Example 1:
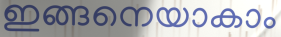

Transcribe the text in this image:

ഇങ്ങനെയാകാം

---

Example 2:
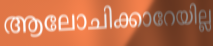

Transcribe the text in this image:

ആലോചിക്കാറേയില്ല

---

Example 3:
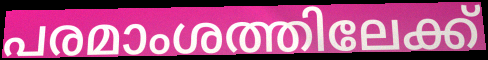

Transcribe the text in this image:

പരമാംശത്തിലേക്ക്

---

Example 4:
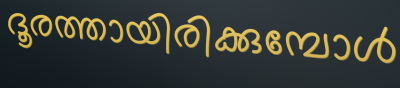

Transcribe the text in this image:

ദൂരത്തായിരിക്കുമ്പോൾ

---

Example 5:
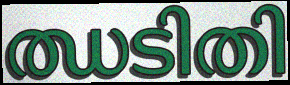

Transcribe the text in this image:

ഝടിതി